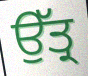
ਉੱਤ੍ਰ